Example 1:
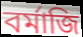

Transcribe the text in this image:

বর্মাজি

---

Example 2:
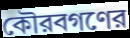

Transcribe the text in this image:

কৌরবগণের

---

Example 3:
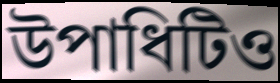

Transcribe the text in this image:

উপাধিটিও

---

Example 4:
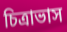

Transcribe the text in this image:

চিত্রাভাস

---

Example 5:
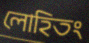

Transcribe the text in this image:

লোহিতং